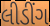
લીડીંગ